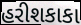
હરીશકાકા